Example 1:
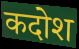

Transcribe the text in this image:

कदोश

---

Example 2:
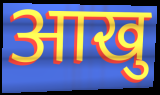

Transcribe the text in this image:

आखु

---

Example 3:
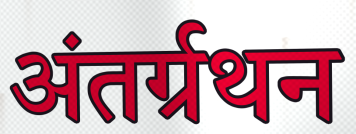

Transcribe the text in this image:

अंतर्ग्रथन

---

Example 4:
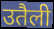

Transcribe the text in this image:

उतैली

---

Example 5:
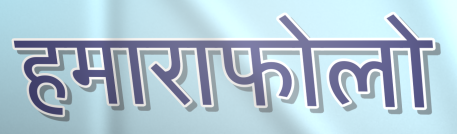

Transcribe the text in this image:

हमाराफोलो